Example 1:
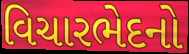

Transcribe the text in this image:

વિચારભેદનો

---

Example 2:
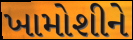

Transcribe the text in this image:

ખામોશીને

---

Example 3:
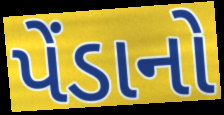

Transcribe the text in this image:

પેંડાનો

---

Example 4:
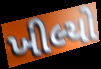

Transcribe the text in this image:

ખીલ્યો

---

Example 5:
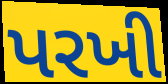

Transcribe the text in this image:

પરખી